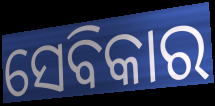
ସେବିକାର